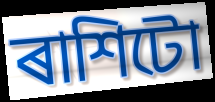
ৰাশিটো